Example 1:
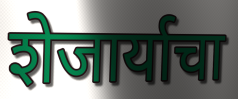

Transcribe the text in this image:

शेजार्याचा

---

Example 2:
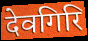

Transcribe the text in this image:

देवगिरि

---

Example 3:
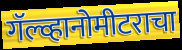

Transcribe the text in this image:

गॅल्व्हानोमीटराचा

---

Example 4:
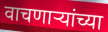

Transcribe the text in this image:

वाचणार्‍यांच्या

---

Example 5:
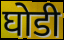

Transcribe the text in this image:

घोडी